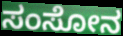
ಸಂಸೋನ